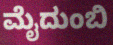
ಮೈದುಂಬಿ